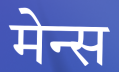
मेन्स